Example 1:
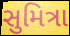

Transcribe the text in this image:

સુમિત્રા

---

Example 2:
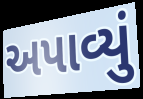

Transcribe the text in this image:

અપાવ્યું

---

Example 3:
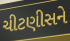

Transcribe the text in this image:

ચીટણીસને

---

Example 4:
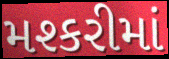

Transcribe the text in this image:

મશ્કરીમાં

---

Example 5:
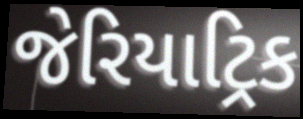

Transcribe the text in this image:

જેરિયાટ્રિક